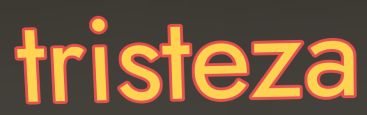
tristeza